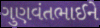
ગુણવંતભાઈને